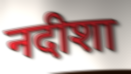
नदीशा